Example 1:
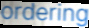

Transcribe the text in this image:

ordering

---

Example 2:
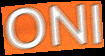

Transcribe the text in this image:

ONI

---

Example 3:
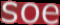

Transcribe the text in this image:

soe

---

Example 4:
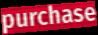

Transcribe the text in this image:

purchase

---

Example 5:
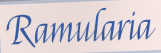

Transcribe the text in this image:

Ramularia